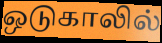
ஒடுகாலில்